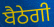
ਬੈਠੇਗੀ